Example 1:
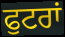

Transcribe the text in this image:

ਫੁਟਰਾਂ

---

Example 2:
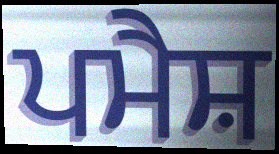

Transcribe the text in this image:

ਪਮੈਸ਼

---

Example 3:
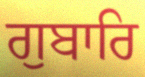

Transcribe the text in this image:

ਗੁਬਾਰਿ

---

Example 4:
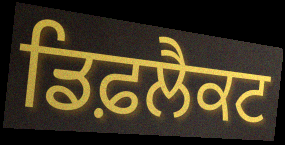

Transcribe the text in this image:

ਡਿਫ਼ਲੈਕਟ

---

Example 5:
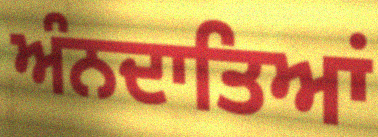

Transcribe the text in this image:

ਅੰਨਦਾਤਿਆਂ